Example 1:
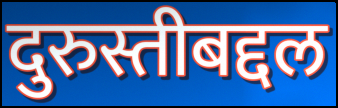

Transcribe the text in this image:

दुरुस्तीबद्दल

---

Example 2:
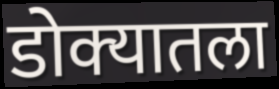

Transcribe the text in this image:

डोक्‍यातला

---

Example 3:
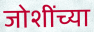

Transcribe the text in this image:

जोशींच्या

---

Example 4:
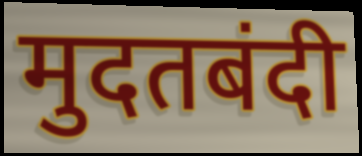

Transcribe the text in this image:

मुदतबंदी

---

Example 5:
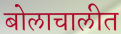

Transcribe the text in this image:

बोलाचालीत